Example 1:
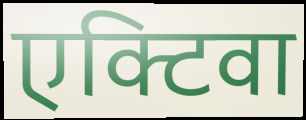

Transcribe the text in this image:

एक्टिवा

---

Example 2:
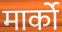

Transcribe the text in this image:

मार्को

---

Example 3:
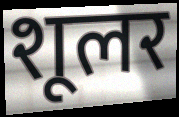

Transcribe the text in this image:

शूलर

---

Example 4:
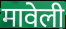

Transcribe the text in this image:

मावेली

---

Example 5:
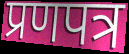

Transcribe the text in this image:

प्रणपत्र